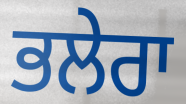
ਭਲੇਰਾ